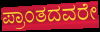
ಪ್ರಾಂತದವರೇ